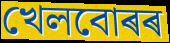
খেলবোৰৰ